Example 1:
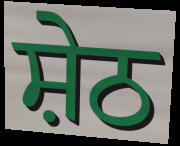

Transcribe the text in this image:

ਸ਼ੇਠ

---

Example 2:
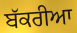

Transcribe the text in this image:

ਬੱਕਰੀਆ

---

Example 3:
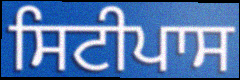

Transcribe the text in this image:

ਸਿਟੀਪਾਸ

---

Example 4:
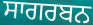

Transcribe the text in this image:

ਸਾਗਰਬਨ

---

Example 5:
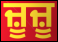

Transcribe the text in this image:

ਜ਼ੂਜ਼ੂ